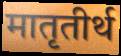
मातृतीर्थ